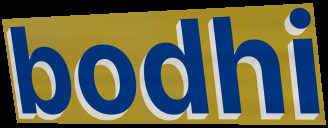
bodhi